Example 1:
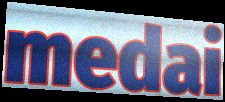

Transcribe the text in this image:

medai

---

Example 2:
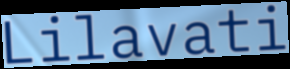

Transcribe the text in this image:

Lilavati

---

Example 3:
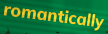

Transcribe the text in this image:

romantically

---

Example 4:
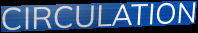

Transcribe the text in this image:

CIRCULATION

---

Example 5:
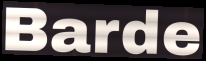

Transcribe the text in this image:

Barde